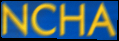
NCHA